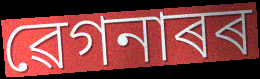
ৱেগনাৰৰ